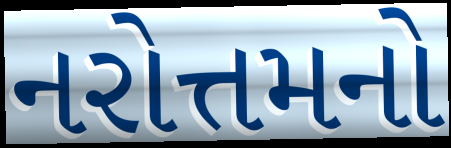
નરોત્તમનો